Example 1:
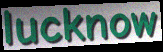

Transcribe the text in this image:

lucknow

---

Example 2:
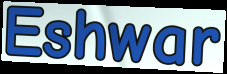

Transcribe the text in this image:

Eshwar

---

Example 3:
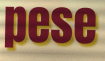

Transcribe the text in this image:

pese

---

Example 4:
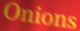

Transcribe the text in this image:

Onions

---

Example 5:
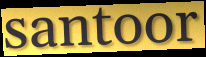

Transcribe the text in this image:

santoor